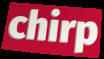
chirp